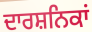
ਦਾਰਸ਼ਨਿਕਾਂ